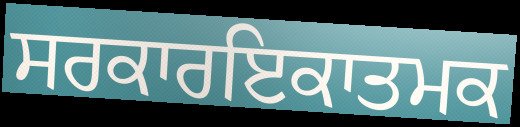
ਸਰਕਾਰਇਕਾਤਮਕ